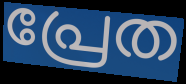
പ്രേത